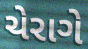
ચેરાગે